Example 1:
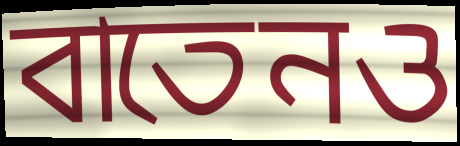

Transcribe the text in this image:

বাতেনও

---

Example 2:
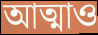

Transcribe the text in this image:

আত্মাও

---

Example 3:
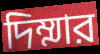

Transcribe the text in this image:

দিম্মার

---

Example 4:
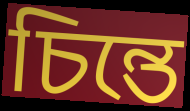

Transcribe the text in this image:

চিন্তে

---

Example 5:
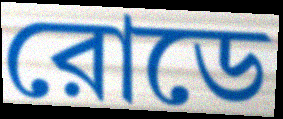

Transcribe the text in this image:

রোডে